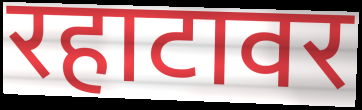
रहाटावर